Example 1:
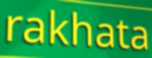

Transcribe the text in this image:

rakhata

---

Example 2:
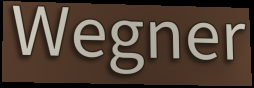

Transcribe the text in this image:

Wegner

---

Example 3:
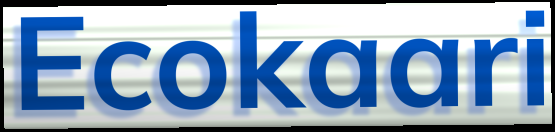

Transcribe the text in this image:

Ecokaari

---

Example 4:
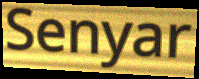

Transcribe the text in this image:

Senyar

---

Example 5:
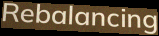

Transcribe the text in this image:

Rebalancing